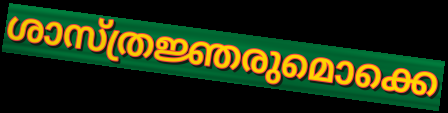
ശാസ്ത്രജ്ഞരുമൊക്കെ